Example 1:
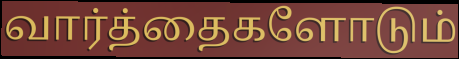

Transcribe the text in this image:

வார்த்தைகளோடும்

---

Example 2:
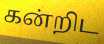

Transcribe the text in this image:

கன்றிட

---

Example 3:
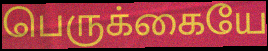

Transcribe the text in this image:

பெருக்கையே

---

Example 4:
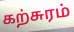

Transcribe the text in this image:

கற்சுரம்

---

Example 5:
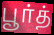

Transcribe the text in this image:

பூர்த்